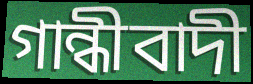
গান্ধীবাদী